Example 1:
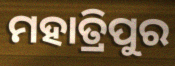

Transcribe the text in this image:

ମହାତ୍ରିପୁର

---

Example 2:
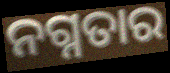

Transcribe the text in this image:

ନଗ୍ନତାର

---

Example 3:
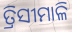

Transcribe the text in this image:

ତ୍ରିସୀମାଳି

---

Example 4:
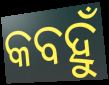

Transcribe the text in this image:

କବହୁଁ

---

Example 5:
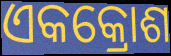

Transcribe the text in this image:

ଏକକ୍ରୋଶ